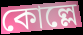
কোল্লে